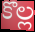
కొల్ల